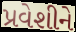
પ્રવેશીને